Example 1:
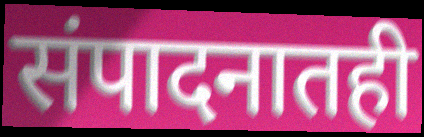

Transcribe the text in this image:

संपादनातही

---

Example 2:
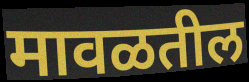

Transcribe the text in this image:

मावळतील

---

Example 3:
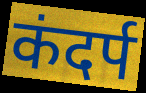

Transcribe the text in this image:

कंदर्प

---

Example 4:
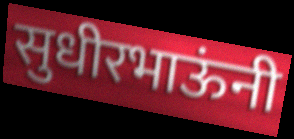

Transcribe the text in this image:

सुधीरभाऊंनी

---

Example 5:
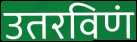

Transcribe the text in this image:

उतरविणं